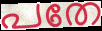
പതേ